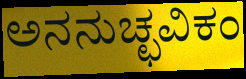
ಅನನುಚ್ಛವಿಕಂ